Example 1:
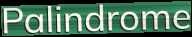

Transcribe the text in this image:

Palindrome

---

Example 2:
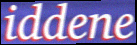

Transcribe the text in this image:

iddene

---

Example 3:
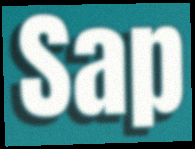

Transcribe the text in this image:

Sap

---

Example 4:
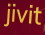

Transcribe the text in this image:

jivit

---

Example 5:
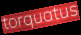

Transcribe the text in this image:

torquatus